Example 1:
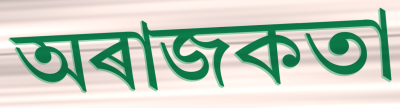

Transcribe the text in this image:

অৰাজকতা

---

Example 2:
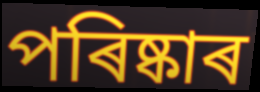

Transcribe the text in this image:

পৰিষ্কাৰ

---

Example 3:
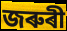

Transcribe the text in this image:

জৰুৰী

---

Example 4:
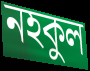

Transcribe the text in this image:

নহকুল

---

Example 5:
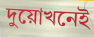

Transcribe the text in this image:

দুয়োখনেই